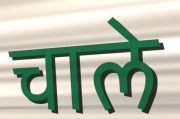
चाले